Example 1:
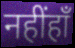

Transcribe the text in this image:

नहींहाँ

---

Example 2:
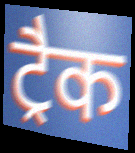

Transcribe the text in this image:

ट्रैक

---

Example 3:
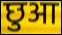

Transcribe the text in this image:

छुआ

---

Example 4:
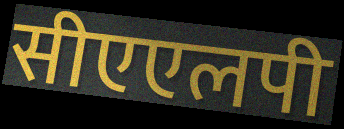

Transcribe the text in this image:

सीएएलपी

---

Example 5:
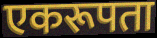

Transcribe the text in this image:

एकरूपता